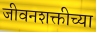
जीवनशक्तीच्या